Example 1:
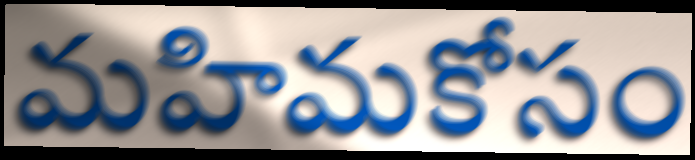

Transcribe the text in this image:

మహిమకోసం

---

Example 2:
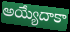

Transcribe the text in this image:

అయ్యేదాకా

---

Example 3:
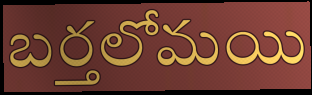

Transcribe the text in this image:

బర్తలోమయి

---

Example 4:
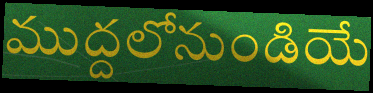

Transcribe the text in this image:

ముద్దలోనుండియే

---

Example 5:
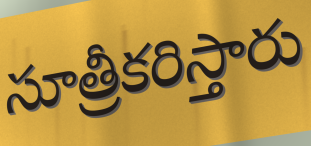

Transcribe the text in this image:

సూత్రీకరిస్తారు